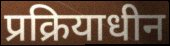
प्रक्रियाधीन